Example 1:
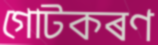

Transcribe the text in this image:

গোটকৰণ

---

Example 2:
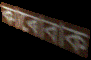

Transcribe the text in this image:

কাৰোবাক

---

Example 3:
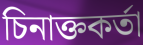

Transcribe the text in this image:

চিনাক্তকৰ্তা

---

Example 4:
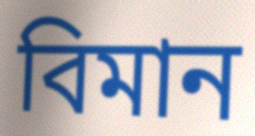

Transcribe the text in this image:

বিমান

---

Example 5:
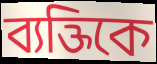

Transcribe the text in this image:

ব্যক্তিকে